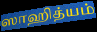
ஸாஹித்யம்